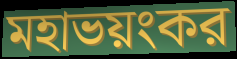
মহাভয়ংকর